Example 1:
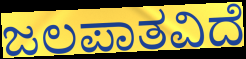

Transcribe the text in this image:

ಜಲಪಾತವಿದೆ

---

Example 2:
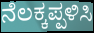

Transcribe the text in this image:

ನೆಲಕ್ಕಪ್ಪಳಿಸಿ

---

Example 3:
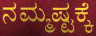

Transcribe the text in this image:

ನಮ್ಮಷ್ಟಕ್ಕೆ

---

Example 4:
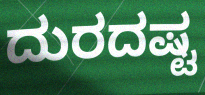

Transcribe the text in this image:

ದುರದಷ್ಟ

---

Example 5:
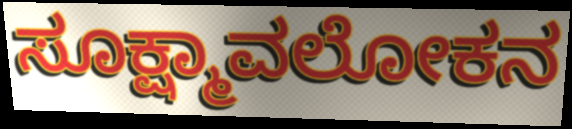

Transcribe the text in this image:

ಸೂಕ್ಷ್ಮಾವಲೋಕನ